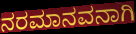
ನರಮಾನವನಾಗಿ